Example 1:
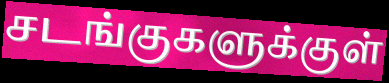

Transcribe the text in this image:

சடங்குகளுக்குள்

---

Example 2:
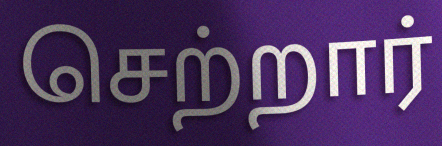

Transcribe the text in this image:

செற்றார்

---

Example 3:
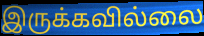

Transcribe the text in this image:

இருக்கவில்லை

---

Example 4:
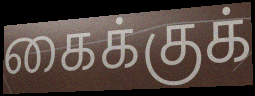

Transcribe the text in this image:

கைக்குக்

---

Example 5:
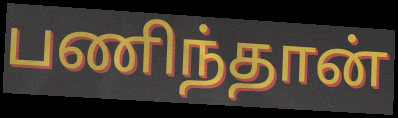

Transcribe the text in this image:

பணிந்தான்